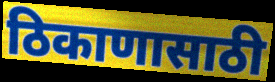
ठिकाणासाठी